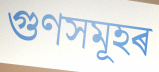
গুণসমূহৰ